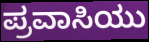
ಪ್ರವಾಸಿಯು